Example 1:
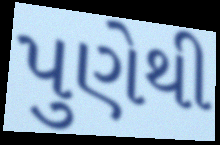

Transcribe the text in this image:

પુણેથી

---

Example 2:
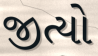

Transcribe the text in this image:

જીત્યો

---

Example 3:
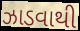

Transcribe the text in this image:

ઝાડવાથી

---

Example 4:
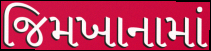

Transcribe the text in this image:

જિમખાનામાં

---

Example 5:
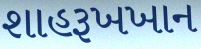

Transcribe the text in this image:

શાહરૂખખાન